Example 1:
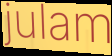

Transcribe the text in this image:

julam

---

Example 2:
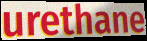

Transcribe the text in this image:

urethane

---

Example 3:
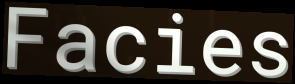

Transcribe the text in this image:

Facies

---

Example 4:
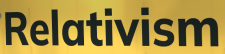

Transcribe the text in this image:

Relativism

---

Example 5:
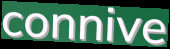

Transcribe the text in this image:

connive